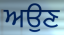
ਅਉਣ